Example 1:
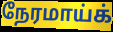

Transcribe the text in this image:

நேரமாய்க்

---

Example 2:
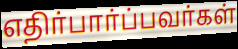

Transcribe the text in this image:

எதிர்பார்ப்பவர்கள்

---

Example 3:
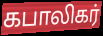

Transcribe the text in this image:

கபாலிகர்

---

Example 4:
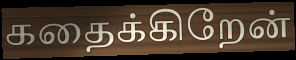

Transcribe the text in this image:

கதைக்கிறேன்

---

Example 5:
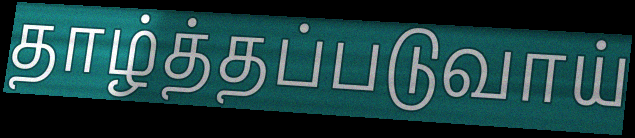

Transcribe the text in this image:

தாழ்த்தப்படுவாய்